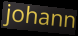
johann